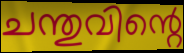
ചന്തുവിന്റെ